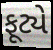
ફૂટ્યે